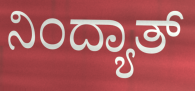
ನಿಂದ್ಯಾತ್